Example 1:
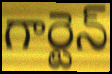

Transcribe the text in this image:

గార్టెన్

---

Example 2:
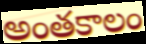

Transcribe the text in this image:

అంతకాలం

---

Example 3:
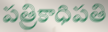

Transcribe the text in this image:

పత్రికాధిపతి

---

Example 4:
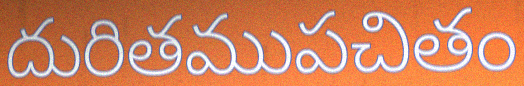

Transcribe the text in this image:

దురితముపచితం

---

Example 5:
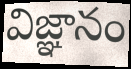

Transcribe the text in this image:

విజ్ఞానం